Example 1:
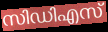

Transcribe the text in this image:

സിഡിഎസ്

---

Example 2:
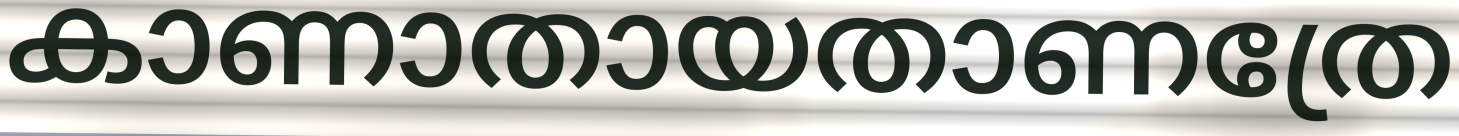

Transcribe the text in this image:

കാണാതായതാണത്രേ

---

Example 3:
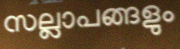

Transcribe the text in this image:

സല്ലാപങ്ങളും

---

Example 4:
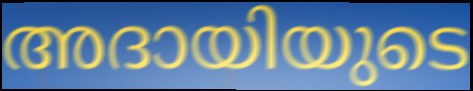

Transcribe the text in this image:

അദായിയുടെ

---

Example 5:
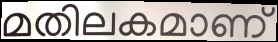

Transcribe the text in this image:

മതിലകമാണ്